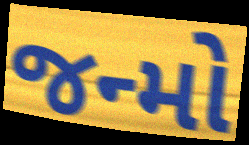
જન્મો